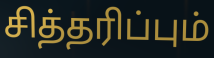
சித்தரிப்பும்